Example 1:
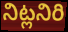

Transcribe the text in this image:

నిట్లనిరి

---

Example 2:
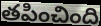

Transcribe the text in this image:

తపించింది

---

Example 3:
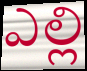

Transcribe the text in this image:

ఎల్లి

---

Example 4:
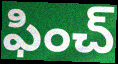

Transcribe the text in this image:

ఫించ్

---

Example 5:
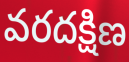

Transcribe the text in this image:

వరదక్షిణ